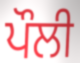
ਪੌਲੀ